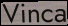
Vinca